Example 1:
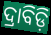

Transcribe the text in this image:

ଦ୍ରାବିଡ଼ି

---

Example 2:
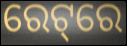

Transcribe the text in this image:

ରେଟ୍‌ରେ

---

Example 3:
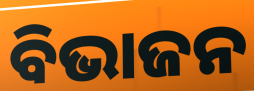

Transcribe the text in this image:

ବିଭାଜନ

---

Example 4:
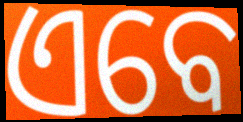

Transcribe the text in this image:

ଏବେ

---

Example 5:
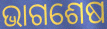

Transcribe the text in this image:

ଭାଗଶେଷ